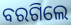
ବରଗିଲେ